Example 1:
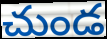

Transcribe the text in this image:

చుండ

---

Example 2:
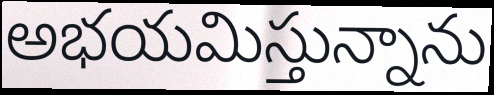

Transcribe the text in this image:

అభయమిస్తున్నాను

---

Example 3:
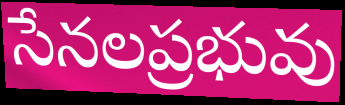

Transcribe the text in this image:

సేనలప్రభువు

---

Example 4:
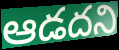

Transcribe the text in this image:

ఆడదని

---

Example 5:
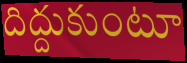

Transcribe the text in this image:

దిద్దుకుంటూ